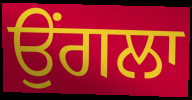
ਉਂਗਲਾ